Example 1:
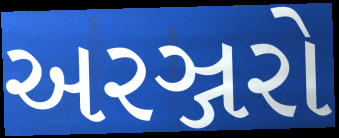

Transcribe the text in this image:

અરઞ્જરો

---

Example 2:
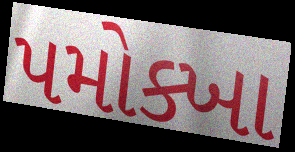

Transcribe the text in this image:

પમોક્ખા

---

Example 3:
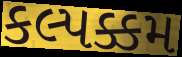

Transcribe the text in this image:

કલ્પક્કમ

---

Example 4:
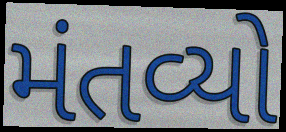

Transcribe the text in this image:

મંતવ્યો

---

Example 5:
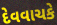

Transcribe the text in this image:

દેવવાચકે